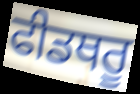
ਫੀਡਥਰੂ